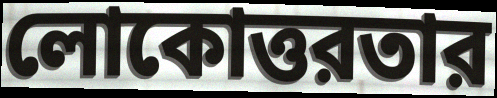
লোকোত্তরতার